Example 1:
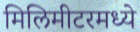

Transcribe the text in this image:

मिलिमीटरमध्ये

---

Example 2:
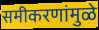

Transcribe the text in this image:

समीकरणांमुळे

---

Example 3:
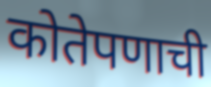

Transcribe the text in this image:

कोतेपणाची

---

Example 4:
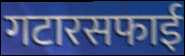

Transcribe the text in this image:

गटारसफाई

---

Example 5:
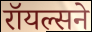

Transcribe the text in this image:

रॉयल्सने